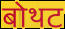
बोथट